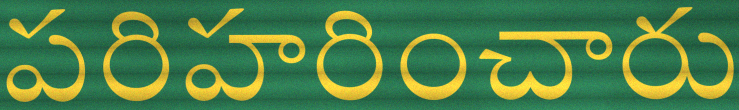
పరిహరించారు